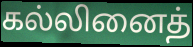
கல்லினைத்